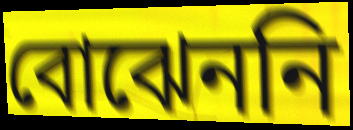
বোঝেননি